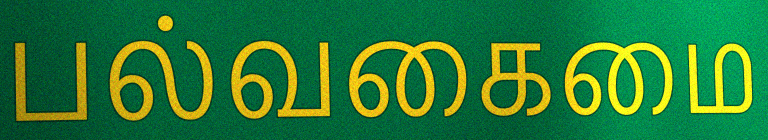
பல்வகைமை